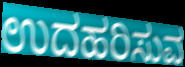
ಉದಹರಿಸುವ